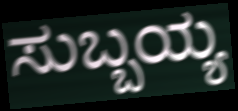
ಸುಬ್ಬಯ್ಯ